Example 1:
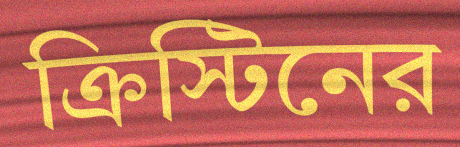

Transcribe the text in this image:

ক্রিস্টিনের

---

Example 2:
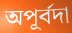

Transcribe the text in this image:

অপূর্বদা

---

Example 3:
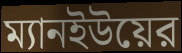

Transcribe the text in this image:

ম্যানইউয়ের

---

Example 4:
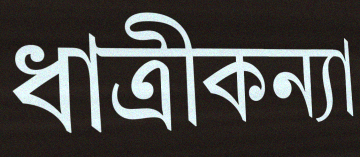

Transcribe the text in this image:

ধাত্রীকন্যা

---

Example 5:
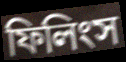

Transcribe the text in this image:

ফিলিংস